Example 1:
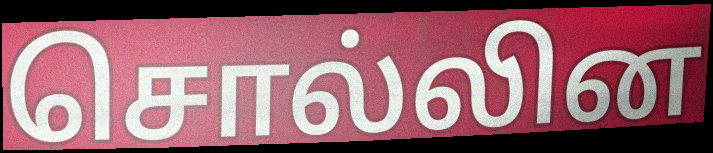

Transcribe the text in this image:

சொல்லின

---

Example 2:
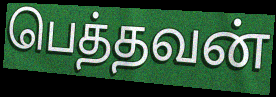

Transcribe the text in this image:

பெத்தவன்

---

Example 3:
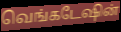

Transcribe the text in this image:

வெங்கடேஷின்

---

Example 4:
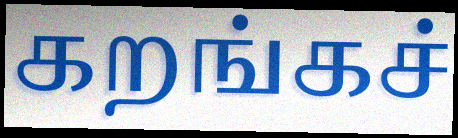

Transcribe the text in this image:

கறங்கச்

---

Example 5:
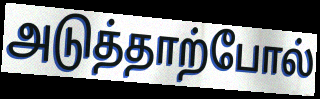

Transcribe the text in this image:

அடுத்தாற்போல்